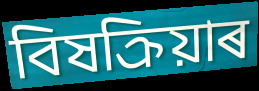
বিষক্ৰিয়াৰ